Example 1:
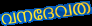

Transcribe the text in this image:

വനദേവത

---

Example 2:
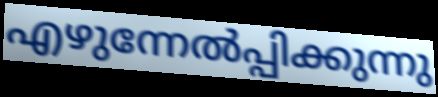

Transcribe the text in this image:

എഴുന്നേൽപ്പിക്കുന്നു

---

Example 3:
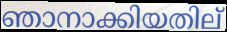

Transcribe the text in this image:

ഞാനാക്കിയതില്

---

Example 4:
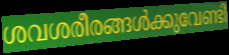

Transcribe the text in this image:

ശവശരീരങ്ങൾക്കുവേണ്ടി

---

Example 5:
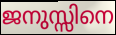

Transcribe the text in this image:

ജനുസ്സിനെ